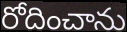
రోదించాను